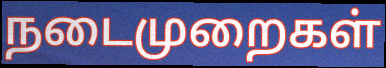
நடைமுறைகள்